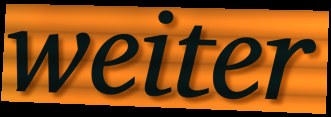
weiter